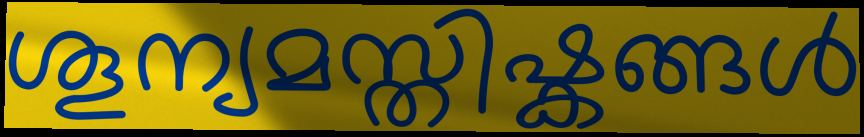
ശൂന്യമസ്തിഷ്കങ്ങൾ